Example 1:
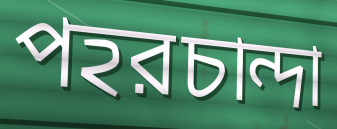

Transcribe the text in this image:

পহরচান্দা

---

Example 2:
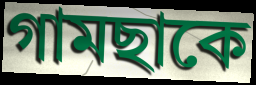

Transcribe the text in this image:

গামছাকে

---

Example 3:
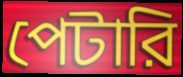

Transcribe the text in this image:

পেটারি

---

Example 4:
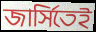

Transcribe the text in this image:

জার্সিতেই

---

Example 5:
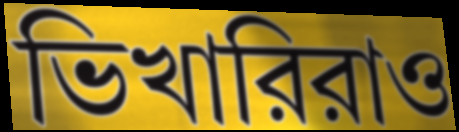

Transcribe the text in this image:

ভিখারিরাও